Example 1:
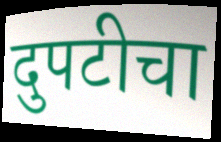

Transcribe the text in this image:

दुपटीचा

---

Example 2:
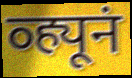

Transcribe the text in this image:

व्ह्यूनं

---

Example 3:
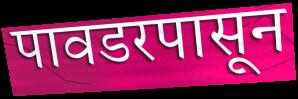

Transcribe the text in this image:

पावडरपासून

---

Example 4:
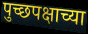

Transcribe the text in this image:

पुच्छपक्षाच्या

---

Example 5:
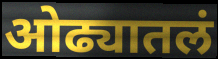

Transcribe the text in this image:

ओढ्यातलं